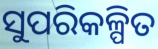
ସୁପରିକଳ୍ପିତ